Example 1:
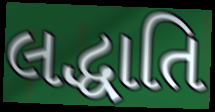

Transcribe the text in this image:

લદ્ધાતિ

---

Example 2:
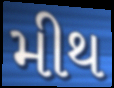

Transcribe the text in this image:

મીથ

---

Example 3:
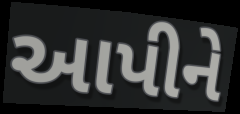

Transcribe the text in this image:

આપીને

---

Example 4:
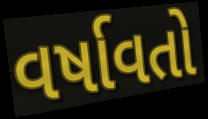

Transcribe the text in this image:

વર્ષાવતો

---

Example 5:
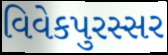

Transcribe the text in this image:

વિવેકપુરસ્સર